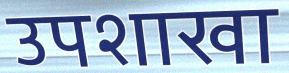
उपशाखा